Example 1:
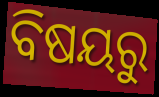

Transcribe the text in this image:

ବିଷୟରୁ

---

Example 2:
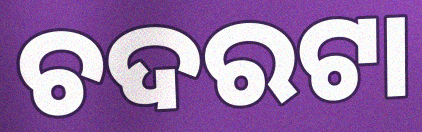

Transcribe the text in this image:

ଚଦରଟା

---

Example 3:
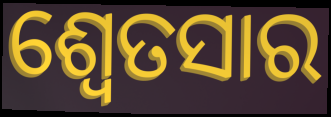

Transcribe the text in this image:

ଶ୍ଵେତସାର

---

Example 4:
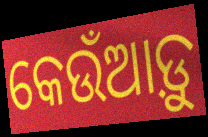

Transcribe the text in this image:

କେଉଁଆଡ଼ୁ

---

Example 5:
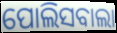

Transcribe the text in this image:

ପୋଲିସବାଲା